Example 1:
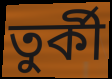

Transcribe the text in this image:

তুর্কী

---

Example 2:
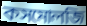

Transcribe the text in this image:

কসমোলজি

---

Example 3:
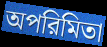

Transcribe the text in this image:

অপরিমিতা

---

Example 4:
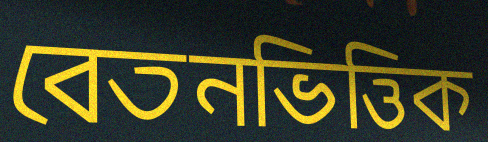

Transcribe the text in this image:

বেতনভিত্তিক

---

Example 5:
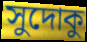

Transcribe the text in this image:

সুদোকু